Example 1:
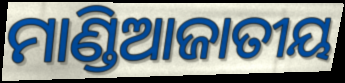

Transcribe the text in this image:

ମାଣ୍ଡିଆଜାତୀୟ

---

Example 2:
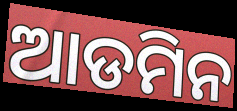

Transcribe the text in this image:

ଆଡମିନ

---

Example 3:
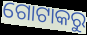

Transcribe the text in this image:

ଗୋଟାକରୁ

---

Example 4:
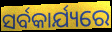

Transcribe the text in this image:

ସର୍ବକାର୍ଯ୍ୟରେ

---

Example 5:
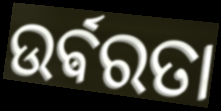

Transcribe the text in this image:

ଉର୍ଵରତା